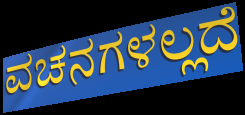
ವಚನಗಳಲ್ಲದೆ